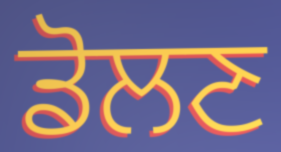
ਡੋਲਣ